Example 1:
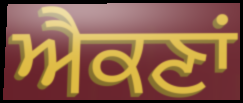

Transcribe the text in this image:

ਐਕਣਾਂ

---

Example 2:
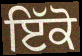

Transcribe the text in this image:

ਇੱਕੋ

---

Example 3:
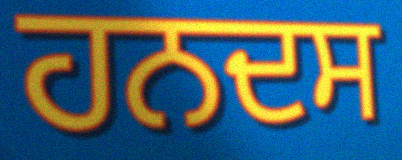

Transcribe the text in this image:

ਹਨਦਸ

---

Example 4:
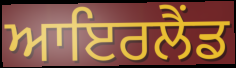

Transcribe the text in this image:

ਆਇਰਲੈਂਡ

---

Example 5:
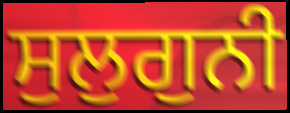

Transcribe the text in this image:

ਸੁਲੁਗੁਨੀ